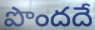
పొందదే